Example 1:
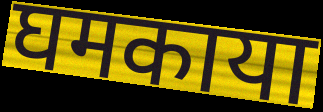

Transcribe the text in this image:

घमकाया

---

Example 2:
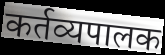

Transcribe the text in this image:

कर्तव्यपालक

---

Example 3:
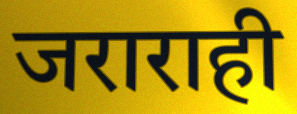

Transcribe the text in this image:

जराराही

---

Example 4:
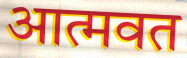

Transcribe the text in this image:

आत्मवत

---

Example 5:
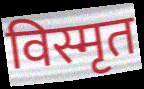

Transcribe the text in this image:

विस्मृत